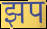
झप